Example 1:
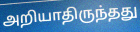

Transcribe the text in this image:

அறியாதிருந்தது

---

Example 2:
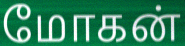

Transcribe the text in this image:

மோகன்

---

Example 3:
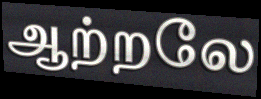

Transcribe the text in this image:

ஆற்றலே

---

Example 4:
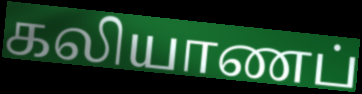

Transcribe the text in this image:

கலியாணப்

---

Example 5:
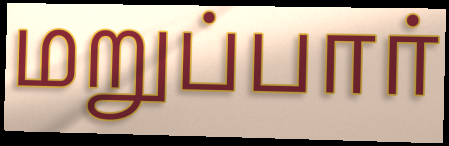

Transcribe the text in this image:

மறுப்பார்